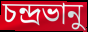
চন্দ্রভানু